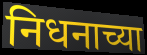
निधनाच्या